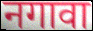
नगावा